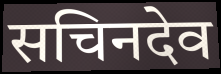
सचिनदेव